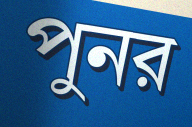
পুনর